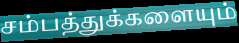
சம்பத்துக்களையும்